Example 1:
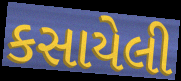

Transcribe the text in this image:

કસાયેલી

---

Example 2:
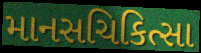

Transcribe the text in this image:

માનસચિકિત્સા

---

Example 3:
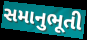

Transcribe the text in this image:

સમાનુભૂતી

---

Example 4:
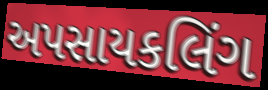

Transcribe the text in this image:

અપસાયકલિંગ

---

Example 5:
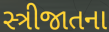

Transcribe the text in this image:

સ્ત્રીજાતના